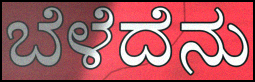
ಬೆಳೆದೆನು